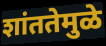
शांततेमुळे